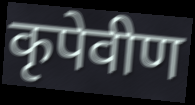
कृपेवीण